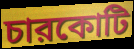
চারকোটি